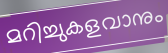
മറിച്ചുകളവാനും